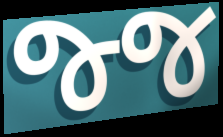
જ્જ